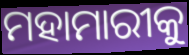
ମହାମାରୀକୁ